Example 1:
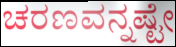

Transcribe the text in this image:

ಚರಣವನ್ನಷ್ಟೇ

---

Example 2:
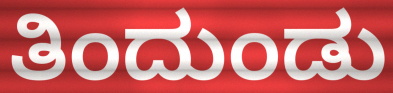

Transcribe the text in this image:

ತಿಂದುಂಡು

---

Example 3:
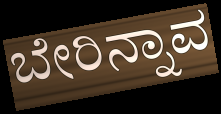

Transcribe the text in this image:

ಬೇರಿನ್ನಾವ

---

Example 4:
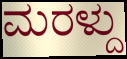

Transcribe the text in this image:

ಮರಳ್ದು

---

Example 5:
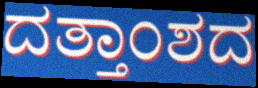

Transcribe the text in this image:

ದತ್ತಾಂಶದ